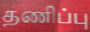
தணிப்பு